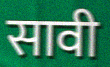
सावी